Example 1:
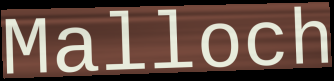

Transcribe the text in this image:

Malloch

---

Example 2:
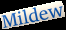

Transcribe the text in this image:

Mildew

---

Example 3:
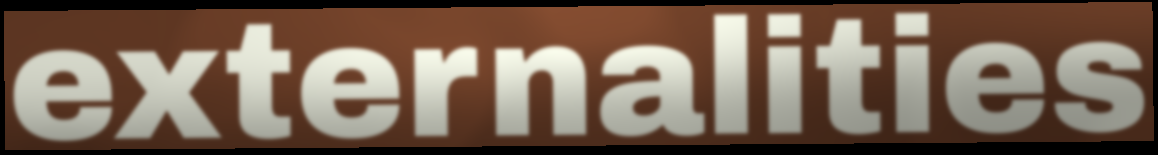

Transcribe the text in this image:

externalities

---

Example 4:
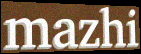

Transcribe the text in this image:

mazhi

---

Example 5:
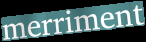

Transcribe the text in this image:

merriment